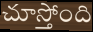
చూస్తోంది